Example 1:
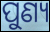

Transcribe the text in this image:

ପୁଣ୍ୟ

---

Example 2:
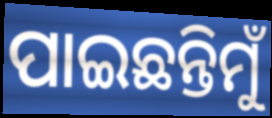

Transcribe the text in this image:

ପାଇଛନ୍ତିମୁଁ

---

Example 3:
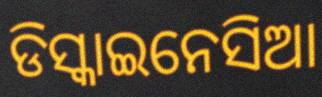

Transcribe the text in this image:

ଡିସ୍କାଇନେସିଆ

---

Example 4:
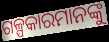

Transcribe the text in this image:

ଗଳ୍ପକାରମାନଙ୍କୁ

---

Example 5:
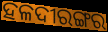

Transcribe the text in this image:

ହଳଦୀରଙ୍ଗର